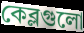
কেব্লগুলো